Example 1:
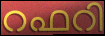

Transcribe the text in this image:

റഫറി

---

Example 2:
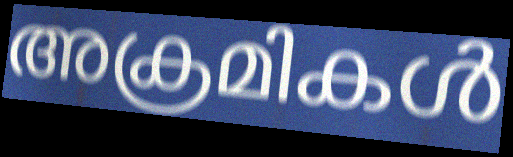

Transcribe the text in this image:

അക്രമികൾ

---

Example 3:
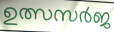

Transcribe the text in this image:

ഉത്സസർജ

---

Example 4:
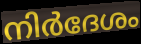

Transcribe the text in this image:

നിർദേശം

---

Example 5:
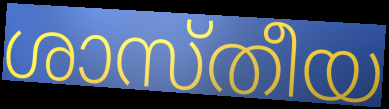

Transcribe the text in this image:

ശാസ്തീയ